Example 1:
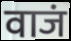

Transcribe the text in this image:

वाजं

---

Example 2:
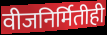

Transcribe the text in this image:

वीजनिर्मितीही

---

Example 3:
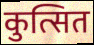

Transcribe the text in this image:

कुत्सित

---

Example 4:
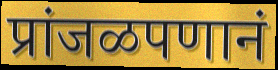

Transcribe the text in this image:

प्रांजळपणानं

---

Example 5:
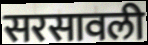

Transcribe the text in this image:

सरसावली